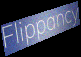
Flippancy